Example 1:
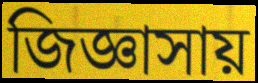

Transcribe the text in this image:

জিজ্ঞাসায়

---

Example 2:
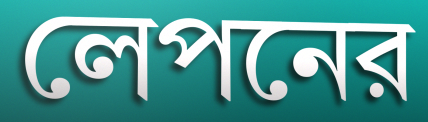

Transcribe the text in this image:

লেপনের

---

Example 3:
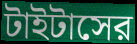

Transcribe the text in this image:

টাইটাসের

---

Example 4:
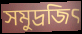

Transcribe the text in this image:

সমুদ্রজিৎ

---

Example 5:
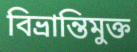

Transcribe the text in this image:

বিভ্রান্তিমুক্ত